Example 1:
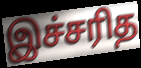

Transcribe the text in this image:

இச்சரித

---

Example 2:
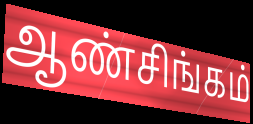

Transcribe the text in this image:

ஆண்சிங்கம்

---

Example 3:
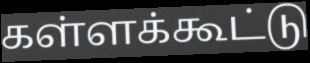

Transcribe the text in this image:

கள்ளக்கூட்டு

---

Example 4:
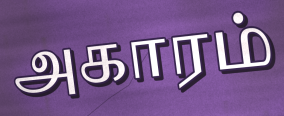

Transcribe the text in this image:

அகாரம்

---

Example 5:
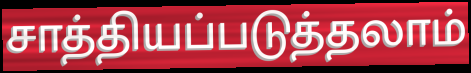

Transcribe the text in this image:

சாத்தியப்படுத்தலாம்